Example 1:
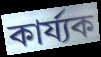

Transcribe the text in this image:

কাৰ্য্যক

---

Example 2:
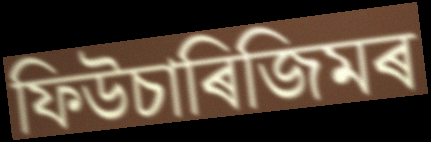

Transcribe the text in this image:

ফিউচাৰিজিমৰ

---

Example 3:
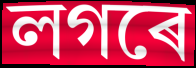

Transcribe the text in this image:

লগৰে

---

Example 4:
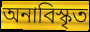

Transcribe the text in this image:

অনাবিস্কৃত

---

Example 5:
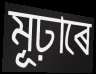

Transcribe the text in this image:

মূঢ়াৰে